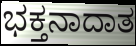
ಭಕ್ತನಾದಾತ